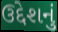
ઉદ્દેશનું